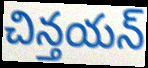
చిన్తయన్